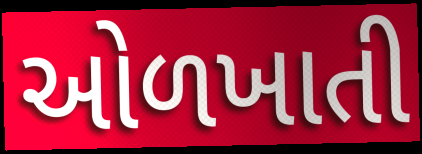
ઓળખાતી